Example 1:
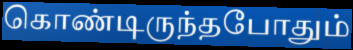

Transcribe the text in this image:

கொண்டிருந்தபோதும்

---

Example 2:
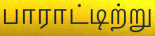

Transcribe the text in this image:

பாராட்டிற்று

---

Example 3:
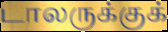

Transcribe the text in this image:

டாலருக்குக்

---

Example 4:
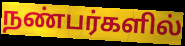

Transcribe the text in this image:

நண்பர்களில்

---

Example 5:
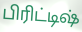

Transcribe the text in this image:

பிரிட்டிஷ்